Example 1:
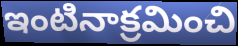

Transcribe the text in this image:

ఇంటినాక్రమించి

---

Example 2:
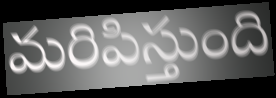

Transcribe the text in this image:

మరిపిస్తుంది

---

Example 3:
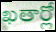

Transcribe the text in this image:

ఖతార్లో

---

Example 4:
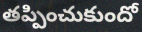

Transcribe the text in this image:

తప్పించుకుందో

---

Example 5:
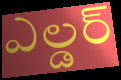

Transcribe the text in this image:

ఎల్డర్